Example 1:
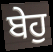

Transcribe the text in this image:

ਬੇਹੁ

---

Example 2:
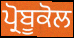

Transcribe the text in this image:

ਪ੍ਰੋਬੂਕੋਲ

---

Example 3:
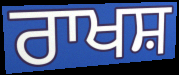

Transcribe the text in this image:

ਰਾਖਸ਼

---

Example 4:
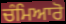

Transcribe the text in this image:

ਚੰਮਿਆਰੋ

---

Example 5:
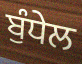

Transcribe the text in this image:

ਬੁੰਧੇਲ